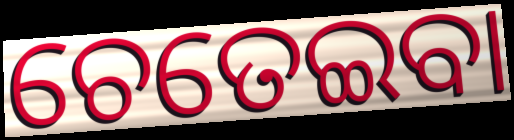
ଚେତେଇବା